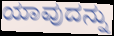
ಯಾವುದನ್ನು